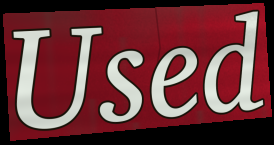
Used